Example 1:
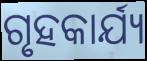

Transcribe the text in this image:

ଗୃହକାର୍ଯ୍ୟ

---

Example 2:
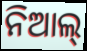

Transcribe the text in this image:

ନିଆଲ୍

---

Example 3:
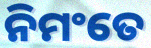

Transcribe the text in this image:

ନିମଂତେ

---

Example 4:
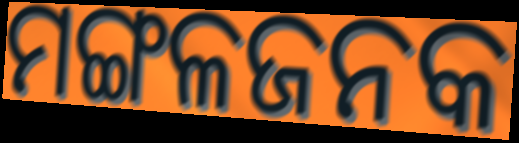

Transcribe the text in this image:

ମଙ୍ଗଳଜନକ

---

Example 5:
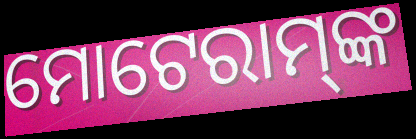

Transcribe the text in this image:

ମୋଟେରାମ୍‌ଙ୍କ